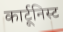
कार्टूनिस्ट